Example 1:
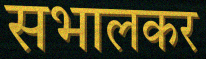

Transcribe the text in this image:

सभालकर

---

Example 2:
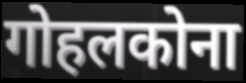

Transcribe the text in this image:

गोहलकोना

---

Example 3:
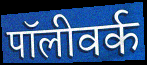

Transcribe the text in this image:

पॉलीवर्क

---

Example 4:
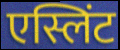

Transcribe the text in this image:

एस्लिंट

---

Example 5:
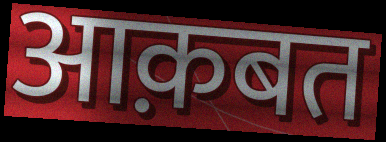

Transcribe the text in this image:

आक़बत